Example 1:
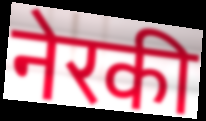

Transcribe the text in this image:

नेरकी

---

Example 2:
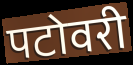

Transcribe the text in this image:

पटोवरी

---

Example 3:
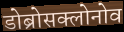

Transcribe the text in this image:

डोब्रोसक्लोनोव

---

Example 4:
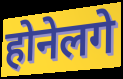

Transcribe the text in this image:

होनेलगे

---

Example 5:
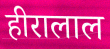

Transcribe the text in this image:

हीरालाल